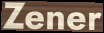
Zener